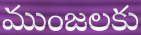
ముంజలకు